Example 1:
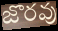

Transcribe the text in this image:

జొరవు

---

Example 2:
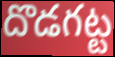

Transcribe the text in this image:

దొడగట్ట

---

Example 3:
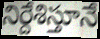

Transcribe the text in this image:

నిర్దేశిస్తూనే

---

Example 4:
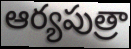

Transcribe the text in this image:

ఆర్యపుత్రా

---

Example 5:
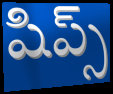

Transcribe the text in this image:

షిప్స్